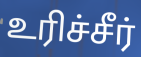
உரிச்சீர்